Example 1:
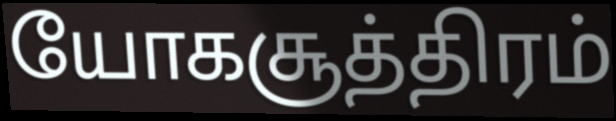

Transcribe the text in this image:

யோகசூத்திரம்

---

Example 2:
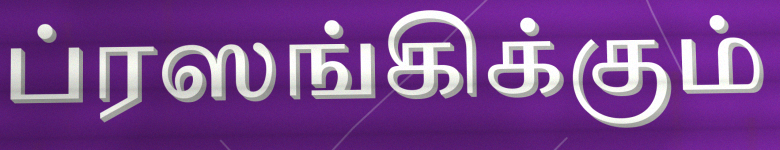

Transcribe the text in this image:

ப்ரஸங்கிக்கும்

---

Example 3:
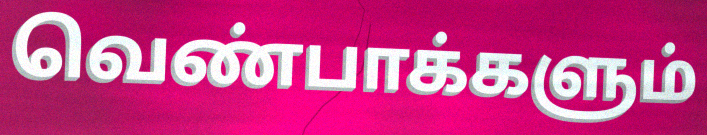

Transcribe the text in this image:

வெண்பாக்களும்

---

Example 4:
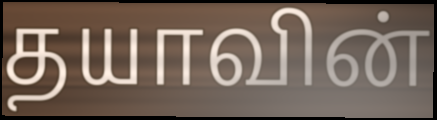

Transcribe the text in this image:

தயாவின்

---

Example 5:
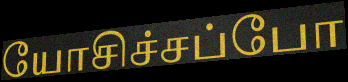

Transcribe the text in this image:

யோசிச்சப்போ